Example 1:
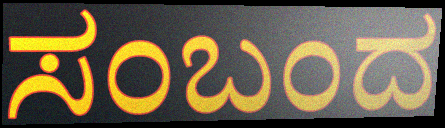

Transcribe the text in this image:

ಸಂಬಂದ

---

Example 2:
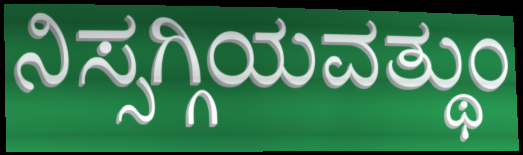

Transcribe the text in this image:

ನಿಸ್ಸಗ್ಗಿಯವತ್ಥುಂ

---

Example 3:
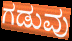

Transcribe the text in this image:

ಗಡುವು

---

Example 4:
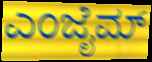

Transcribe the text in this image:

ಎಂಜೈಮ್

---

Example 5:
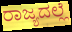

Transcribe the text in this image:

ರಾಜ್ಯದಲ್ಲೆ